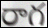
రాగ